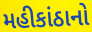
મહીકાંઠાનો